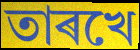
তাৰখে